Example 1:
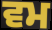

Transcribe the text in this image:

ਵਮ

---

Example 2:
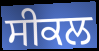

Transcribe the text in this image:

ਸੀਕਲ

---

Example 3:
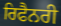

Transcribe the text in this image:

ਰਿਫੈਨਰੀ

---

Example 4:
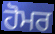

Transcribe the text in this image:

ਹੋਮਰ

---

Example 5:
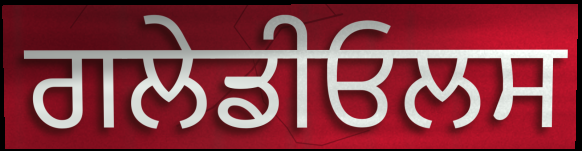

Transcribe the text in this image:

ਗਲੇਡੀਓਲਸ